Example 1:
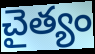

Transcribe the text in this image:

చైత్యం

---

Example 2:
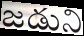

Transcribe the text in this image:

జడుని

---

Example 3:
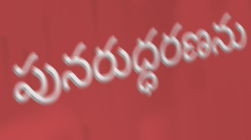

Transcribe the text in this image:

పునరుద్ధరణను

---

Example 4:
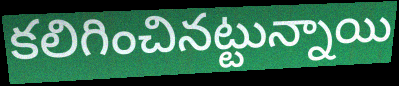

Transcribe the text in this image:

కలిగించినట్టున్నాయి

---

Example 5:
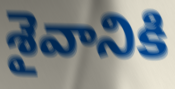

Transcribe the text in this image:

శైవానికి